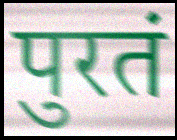
पुरतं